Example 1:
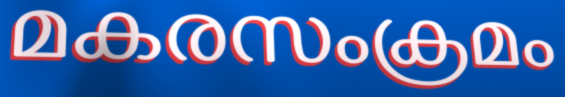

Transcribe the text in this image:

മകരസംക്രമം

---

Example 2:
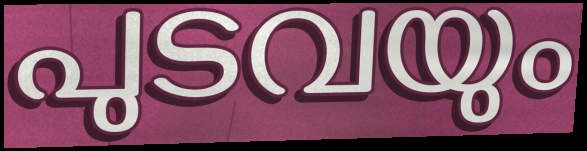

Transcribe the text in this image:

പുടവയും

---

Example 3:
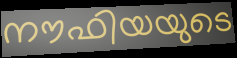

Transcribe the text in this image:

നൗഫിയയുടെ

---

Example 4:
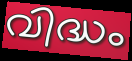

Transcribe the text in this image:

വിദ്ധം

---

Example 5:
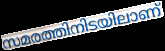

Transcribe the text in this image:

സമരത്തിനിടയിലാണ്